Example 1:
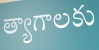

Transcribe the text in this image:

త్యాగాలకు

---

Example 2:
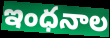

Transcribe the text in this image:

ఇంధనాల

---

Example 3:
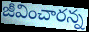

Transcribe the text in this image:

జీవించారన్న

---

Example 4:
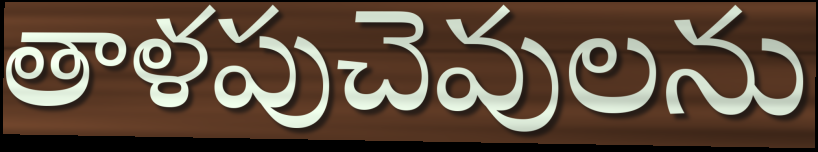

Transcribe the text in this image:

తాళపుచెవులను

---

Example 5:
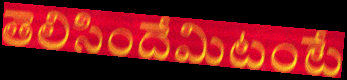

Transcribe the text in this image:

తెలిసిందేమిటంటే